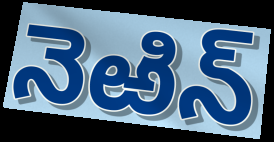
నెఱిన్